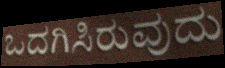
ಒದಗಿಸಿರುವುದು